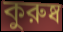
কুরুষ্ব